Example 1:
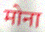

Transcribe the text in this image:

मोना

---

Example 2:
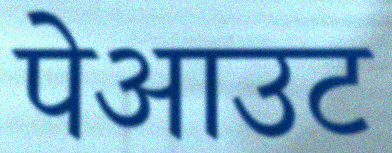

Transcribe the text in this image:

पेआउट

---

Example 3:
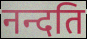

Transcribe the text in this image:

नन्दति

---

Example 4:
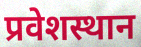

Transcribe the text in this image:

प्रवेशस्थान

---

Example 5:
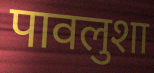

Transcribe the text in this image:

पावलुशा